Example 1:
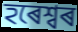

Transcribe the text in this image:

হৰেশ্বৰ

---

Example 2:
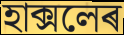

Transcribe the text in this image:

হাক্সলেৰ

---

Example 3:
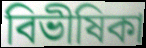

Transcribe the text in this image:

বিভীষিকা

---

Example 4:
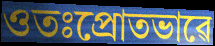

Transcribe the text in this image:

ওতঃপ্ৰোতভাৱে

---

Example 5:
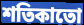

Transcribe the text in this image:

শতিকাতো